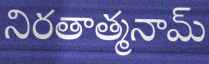
నిరతాత్మనామ్